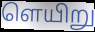
ளெயிறு